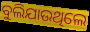
ବୁଲିଯାଉଥିଲେ